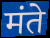
मंते